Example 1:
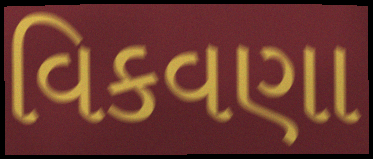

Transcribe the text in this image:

વિકવણા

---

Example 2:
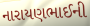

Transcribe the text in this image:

નારાયણભાઈની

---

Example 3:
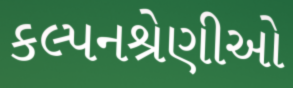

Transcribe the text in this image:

કલ્પનશ્રેણીઓ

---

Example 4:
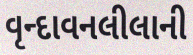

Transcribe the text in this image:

વૃન્દાવનલીલાની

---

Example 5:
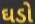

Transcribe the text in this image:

ઘડો